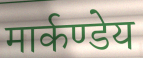
मार्कण्डेय